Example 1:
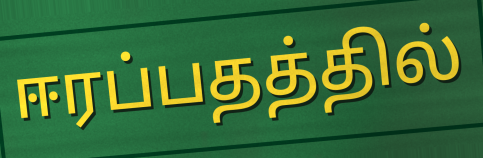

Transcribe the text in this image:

ஈரப்பதத்தில்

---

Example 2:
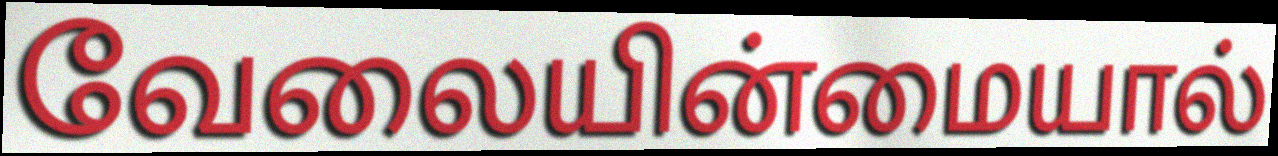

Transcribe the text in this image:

வேலையின்மையால்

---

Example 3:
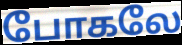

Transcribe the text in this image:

போகலே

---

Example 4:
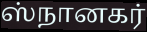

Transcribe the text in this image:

ஸ்நானகர்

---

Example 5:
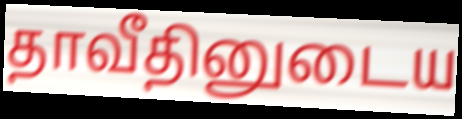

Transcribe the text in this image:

தாவீதினுடைய